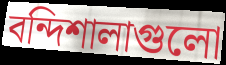
বন্দিশালাগুলো